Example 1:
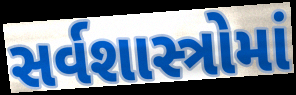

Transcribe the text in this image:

સર્વશાસ્ત્રોમાં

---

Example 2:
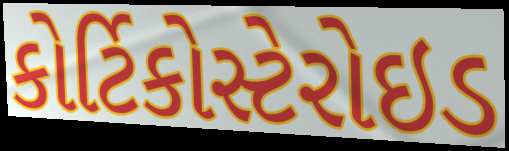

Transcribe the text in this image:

કોર્ટિકોસ્ટેરોઇડ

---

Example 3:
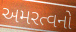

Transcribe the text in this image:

અમરત્વનો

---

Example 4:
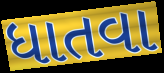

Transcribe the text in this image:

ધાતવા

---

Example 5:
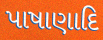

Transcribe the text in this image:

પાષાણાદિ